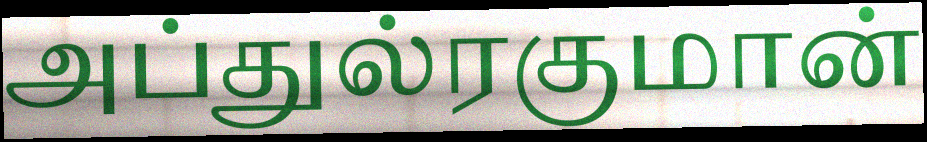
அப்துல்ரகுமான்